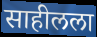
साहीलला